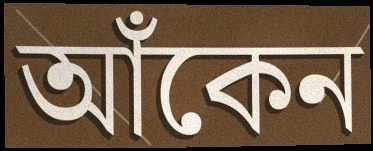
আঁকেন